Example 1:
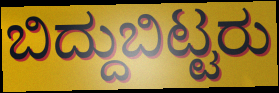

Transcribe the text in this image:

ಬಿದ್ದುಬಿಟ್ಟರು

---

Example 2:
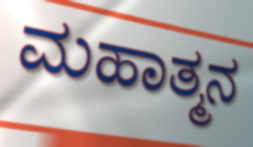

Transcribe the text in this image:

ಮಹಾತ್ಮನ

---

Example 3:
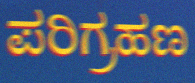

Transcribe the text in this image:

ಪರಿಗ್ರಹಣ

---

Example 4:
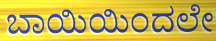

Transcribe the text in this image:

ಬಾಯಿಯಿಂದಲೇ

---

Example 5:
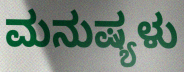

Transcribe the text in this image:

ಮನುಷ್ಯಳು